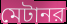
মেটানর